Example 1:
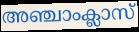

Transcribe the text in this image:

അഞ്ചാംക്ലാസ്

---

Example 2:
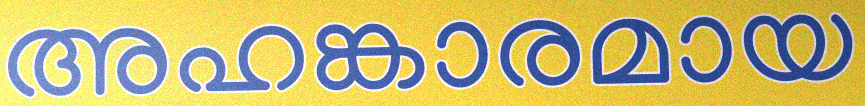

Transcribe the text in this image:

അഹങ്കാരമായ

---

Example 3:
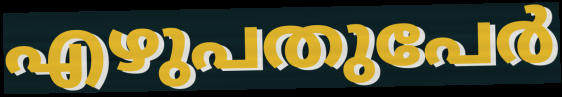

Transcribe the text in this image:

എഴുപതുപേർ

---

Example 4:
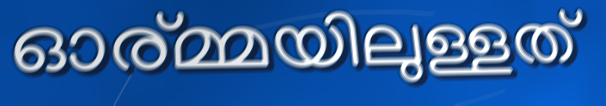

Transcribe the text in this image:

ഓര്മ്മയിലുള്ളത്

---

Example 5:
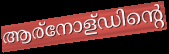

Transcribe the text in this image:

ആര്നോള്ഡിന്റെ